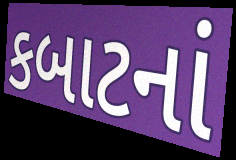
કબાટનાં